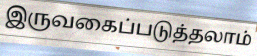
இருவகைப்படுத்தலாம்